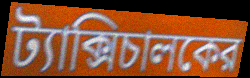
ট্যাক্সিচালকের